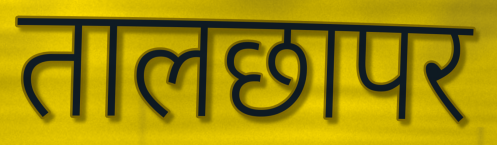
तालछापर